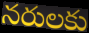
నరులకు